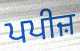
ਪਪੀਜ਼